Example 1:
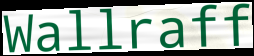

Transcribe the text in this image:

Wallraff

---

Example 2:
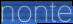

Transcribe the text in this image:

nonte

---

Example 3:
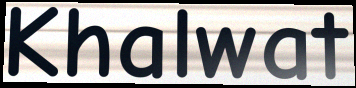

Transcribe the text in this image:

Khalwat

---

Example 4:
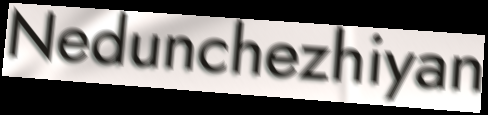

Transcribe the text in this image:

Nedunchezhiyan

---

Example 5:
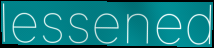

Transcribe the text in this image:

lessened